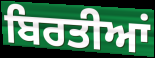
ਬਿਰਤੀਆਂ